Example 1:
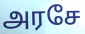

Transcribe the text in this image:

அரசே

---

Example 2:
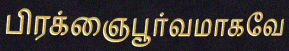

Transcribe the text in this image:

பிரக்ஞைபூர்வமாகவே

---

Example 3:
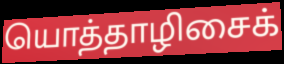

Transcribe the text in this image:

யொத்தாழிசைக்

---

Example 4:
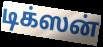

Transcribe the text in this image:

டிக்ஸன்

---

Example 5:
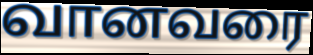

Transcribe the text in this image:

வானவரை